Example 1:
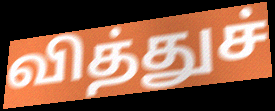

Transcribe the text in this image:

வித்துச்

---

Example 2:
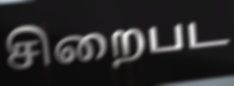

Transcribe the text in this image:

சிறைபட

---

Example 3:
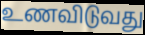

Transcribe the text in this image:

உணவிடுவது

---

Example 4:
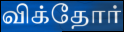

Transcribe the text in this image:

விக்தோர்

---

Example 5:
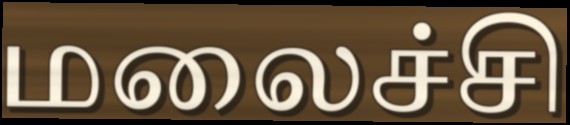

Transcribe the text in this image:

மலைச்சி